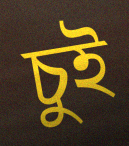
চুই